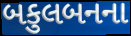
બકુલબનના